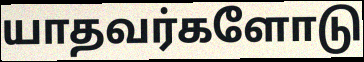
யாதவர்களோடு